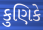
કુણિકે